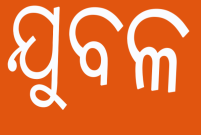
ଯୁବଳ